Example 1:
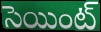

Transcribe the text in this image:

సెయింట్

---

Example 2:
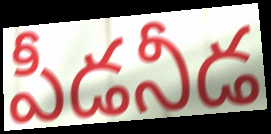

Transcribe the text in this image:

పీడనీడ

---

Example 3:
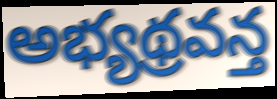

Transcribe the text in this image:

అభ్యథ్రవన్త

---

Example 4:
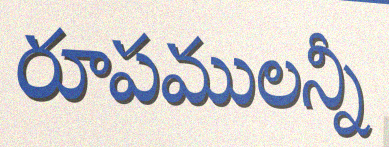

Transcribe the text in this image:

రూపములన్నీ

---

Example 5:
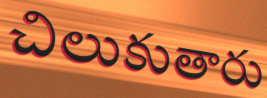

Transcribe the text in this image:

చిలుకుతారు